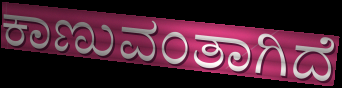
ಕಾಣುವಂತಾಗಿದೆ